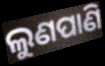
ଲୁଣପାଣି